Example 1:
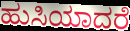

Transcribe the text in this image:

ಹುಸಿಯಾದರೆ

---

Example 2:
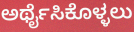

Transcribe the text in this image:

ಅರ್ಥೈಸಿಕೊಳ್ಳಲು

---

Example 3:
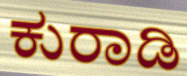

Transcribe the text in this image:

ಕುರಾಡಿ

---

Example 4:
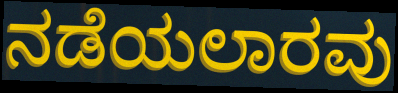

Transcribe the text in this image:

ನಡೆಯಲಾರವು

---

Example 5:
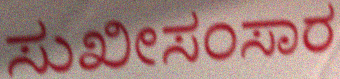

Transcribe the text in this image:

ಸುಖೀಸಂಸಾರ